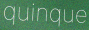
quinque